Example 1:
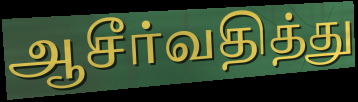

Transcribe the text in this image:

ஆசீர்வதித்து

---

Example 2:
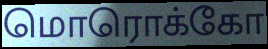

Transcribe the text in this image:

மொரொக்கோ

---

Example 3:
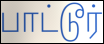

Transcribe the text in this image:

பாட்டூர்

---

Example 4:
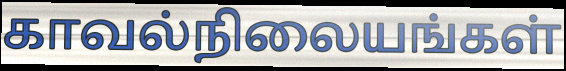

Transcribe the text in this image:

காவல்நிலையங்கள்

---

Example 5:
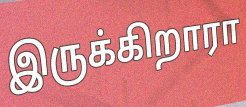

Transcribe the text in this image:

இருக்கிறாரா